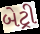
બેટ્રી